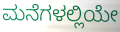
ಮನೆಗಳಲ್ಲಿಯೇ